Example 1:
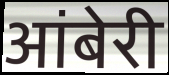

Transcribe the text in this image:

आंबेरी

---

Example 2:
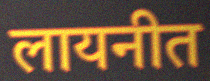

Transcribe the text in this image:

लायनीत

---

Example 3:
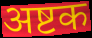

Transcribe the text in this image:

अष्टक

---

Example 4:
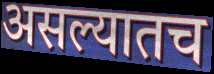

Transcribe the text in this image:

असल्यातच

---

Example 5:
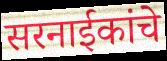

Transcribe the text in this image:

सरनाईकांचे